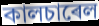
কালচাৰেল